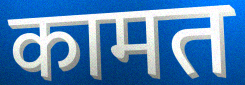
कामत